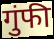
गुंफी